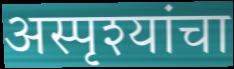
अस्पृश्यांचा